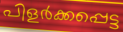
പിളർക്കപ്പെട്ട